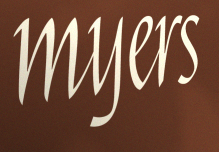
myers